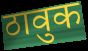
ठावुक